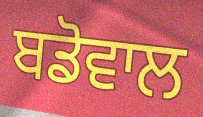
ਬਡੋਵਾਲ